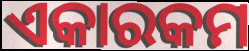
ଏକାରକମ